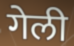
गेली